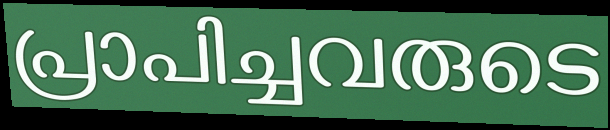
പ്രാപിച്ചവരുടെ